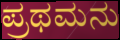
ಪ್ರಥಮನು